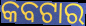
କବଟାର